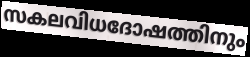
സകലവിധദോഷത്തിനും